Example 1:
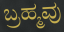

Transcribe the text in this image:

ಬ್ರಹ್ಮವು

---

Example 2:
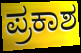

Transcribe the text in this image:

ಪ್ರಕಾಶ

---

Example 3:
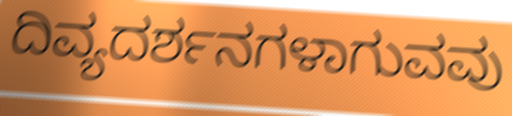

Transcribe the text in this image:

ದಿವ್ಯದರ್ಶನಗಳಾಗುವವು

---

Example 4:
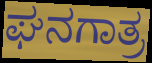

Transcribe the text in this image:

ಘನಗಾತ್ರ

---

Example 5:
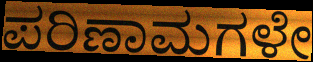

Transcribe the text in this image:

ಪರಿಣಾಮಗಳೇ